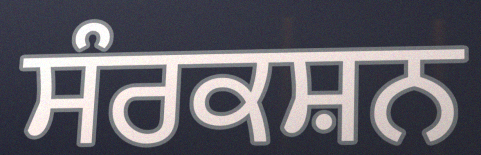
ਸੰਰਕਸ਼ਨ